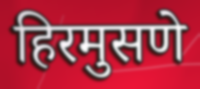
हिरमुसणे